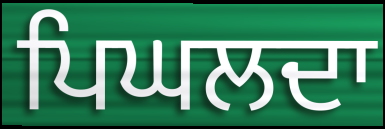
ਪਿਘਲਦਾ